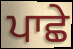
ਪਾਛੇ